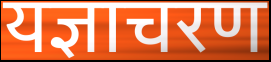
यज्ञाचरण